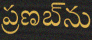
ప్రణబ్‌ను